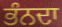
ਭੰਨਦਾ